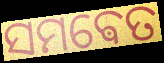
ସମଵେତ